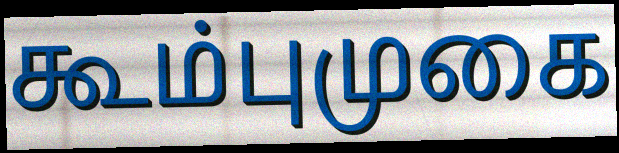
கூம்புமுகை